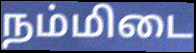
நம்மிடை